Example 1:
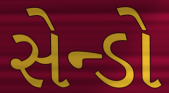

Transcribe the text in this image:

સેન્ડો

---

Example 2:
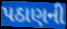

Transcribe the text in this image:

પઠાણની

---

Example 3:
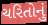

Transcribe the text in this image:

ચરિતોનું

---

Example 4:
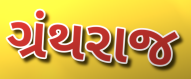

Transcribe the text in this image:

ગ્રંથરાજ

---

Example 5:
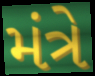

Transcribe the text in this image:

મંત્રે